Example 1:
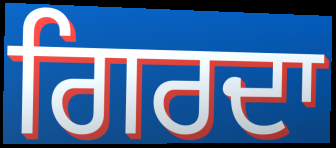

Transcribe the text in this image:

ਗਿਰਦਾ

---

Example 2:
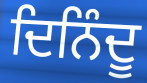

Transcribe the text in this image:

ਦਿਨਿੰਦੂ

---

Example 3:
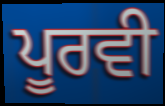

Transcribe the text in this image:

ਪੂਰਵੀ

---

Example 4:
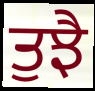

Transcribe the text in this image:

ਤੁਝੈ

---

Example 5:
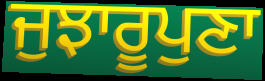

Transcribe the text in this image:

ਜੁਝਾਰੂਪੁਣਾ